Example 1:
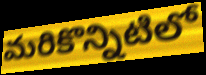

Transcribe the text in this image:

మరికొన్నిటిలో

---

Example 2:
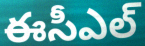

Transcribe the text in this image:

ఈసీఎల్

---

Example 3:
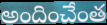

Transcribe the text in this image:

అందించేంత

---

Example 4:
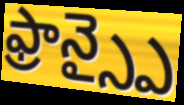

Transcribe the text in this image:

ఫ్రాన్స్పై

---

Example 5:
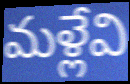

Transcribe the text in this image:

మళ్లేవి